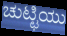
ಚುಟ್ಟಿಯು